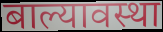
बाल्यावस्था